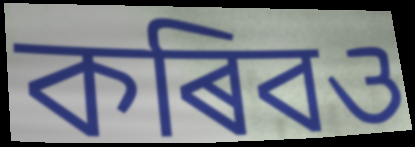
কৰিবও